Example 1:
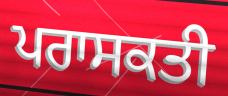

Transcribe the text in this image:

ਪਰਾਸਕਤੀ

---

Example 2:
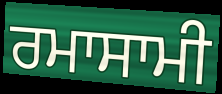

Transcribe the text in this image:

ਰਮਾਸਾਮੀ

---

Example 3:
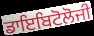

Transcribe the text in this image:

ਡਾਇਬਿਟੋਲੋਜੀ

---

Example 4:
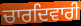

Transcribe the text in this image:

ਚਾਰਦਿਵਾਰੀ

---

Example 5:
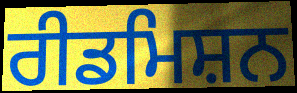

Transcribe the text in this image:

ਰੀਡਮਿਸ਼ਨ